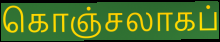
கொஞ்சலாகப்